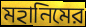
মহানিমের